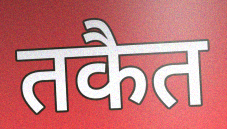
तकैत